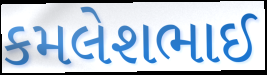
કમલેશભાઈ